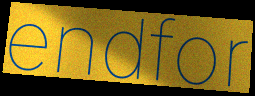
endfor